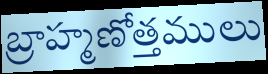
బ్రాహ్మణోత్తములు